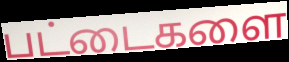
பட்டைகளை